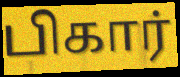
பிகார்